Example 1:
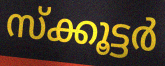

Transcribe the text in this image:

സ്ക്കൂട്ടർ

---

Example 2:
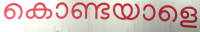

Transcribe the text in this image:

കൊണ്ടയാളെ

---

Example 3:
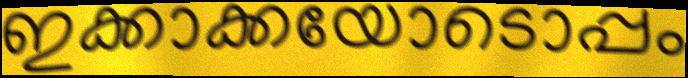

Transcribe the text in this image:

ഇക്കാക്കയോടൊപ്പം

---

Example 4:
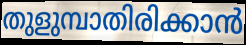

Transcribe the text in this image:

തുളുമ്പാതിരിക്കാൻ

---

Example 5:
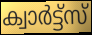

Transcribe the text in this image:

ക്വാർട്ട്സ്